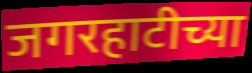
जगरहाटीच्या